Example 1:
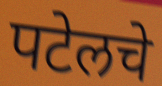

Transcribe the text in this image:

पटेलचे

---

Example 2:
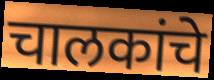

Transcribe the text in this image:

चालकांचे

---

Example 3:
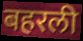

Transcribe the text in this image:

बहरली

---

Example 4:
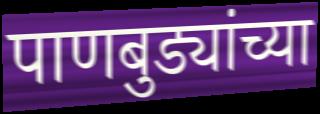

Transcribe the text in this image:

पाणबुड्यांच्या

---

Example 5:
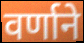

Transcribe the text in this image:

वर्णाने